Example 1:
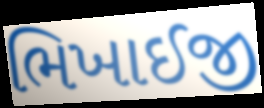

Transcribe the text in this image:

ભિખાઈજી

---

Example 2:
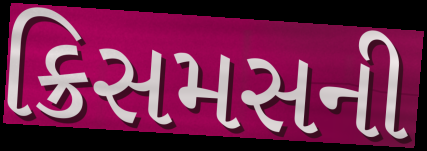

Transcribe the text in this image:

ક્રિસમસની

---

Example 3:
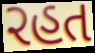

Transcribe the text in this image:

રહત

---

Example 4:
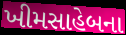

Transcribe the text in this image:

ખીમસાહેબના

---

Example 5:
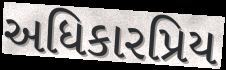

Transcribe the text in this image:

અધિકારપ્રિય